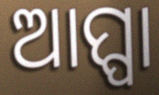
ଆପ୍ପା